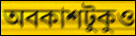
অবকাশটুকুও